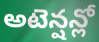
అటెన్షన్లో